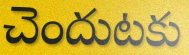
చెందుటకు